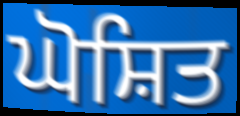
ਘੋਸ਼ਿਤ